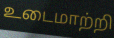
உடைமாற்றி